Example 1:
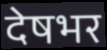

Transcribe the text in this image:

देषभर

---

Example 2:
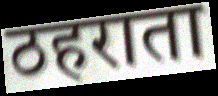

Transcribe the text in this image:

ठहराता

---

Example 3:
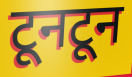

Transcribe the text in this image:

टूनटून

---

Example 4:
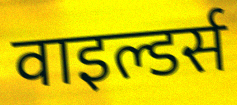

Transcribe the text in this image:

वाइल्डर्स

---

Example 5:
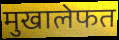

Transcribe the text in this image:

मुखालेफत